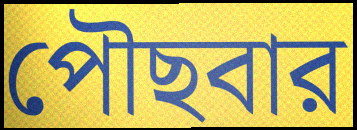
পৌছবার